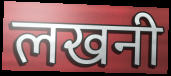
लखनी